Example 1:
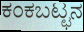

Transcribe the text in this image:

ಕಂಕಬಟ್ಟನ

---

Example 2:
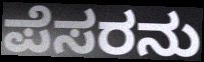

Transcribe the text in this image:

ಪೆಸರನು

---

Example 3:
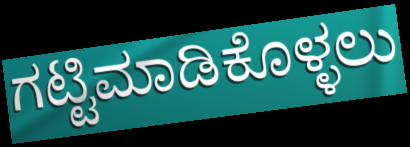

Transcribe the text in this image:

ಗಟ್ಟಿಮಾಡಿಕೊಳ್ಳಲು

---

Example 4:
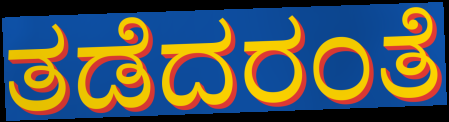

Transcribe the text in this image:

ತಡೆದರಂತೆ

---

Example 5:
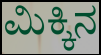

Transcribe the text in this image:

ಮಿಕ್ಕಿನ